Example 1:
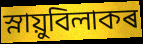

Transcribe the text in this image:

স্নায়ুবিলাকৰ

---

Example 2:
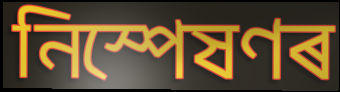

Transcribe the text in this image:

নিস্পেষণৰ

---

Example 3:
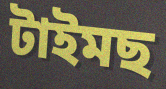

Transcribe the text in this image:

টাইমছ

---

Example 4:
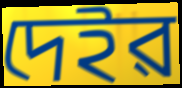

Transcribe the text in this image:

দেইৱ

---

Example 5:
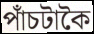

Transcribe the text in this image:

পাঁচটাকৈ